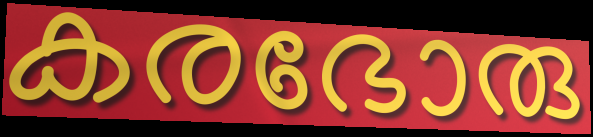
കരഭോരു